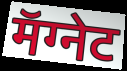
मॅग्नेट